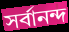
সৰ্বানন্দ